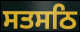
ਸਤਸਠਿ